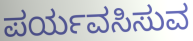
ಪರ್ಯವಸಿಸುವ